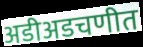
अडीअडचणीत